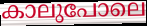
കാലുപോലെ